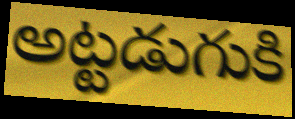
అట్టడుగుకి